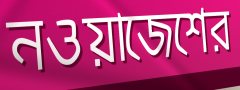
নওয়াজেশের